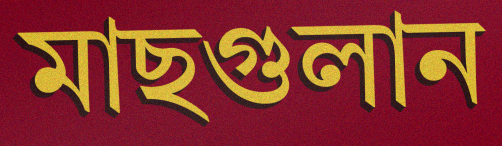
মাছগুলান